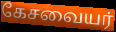
கேசவையர்